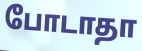
போடாதா